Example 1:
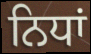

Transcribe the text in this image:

ਨਿਧਾਂ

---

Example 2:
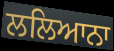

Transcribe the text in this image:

ਲਲਿਆਨਾ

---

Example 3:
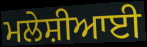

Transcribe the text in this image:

ਮਲੇਸ਼ੀਆਈ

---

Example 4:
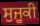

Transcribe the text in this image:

ਸੁਜੂਕੀ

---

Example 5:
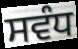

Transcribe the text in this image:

ਸਵੰਧ